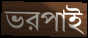
ভরপাই